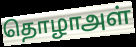
தொழாஅள்